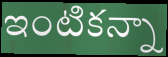
ఇంటికన్నా